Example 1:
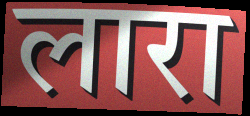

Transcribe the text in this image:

लारा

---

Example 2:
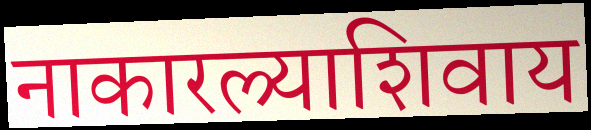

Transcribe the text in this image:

नाकारल्याशिवाय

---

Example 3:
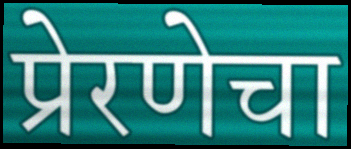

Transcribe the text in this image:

प्रेरणेचा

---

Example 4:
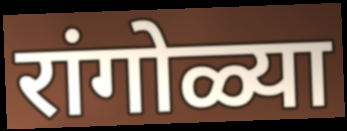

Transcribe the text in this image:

रांगोळ्या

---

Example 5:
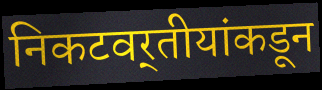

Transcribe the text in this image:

निकटवर्तीयांकडून